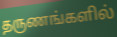
தருணங்களில்